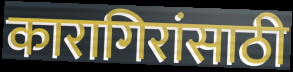
कारागिरांसाठी